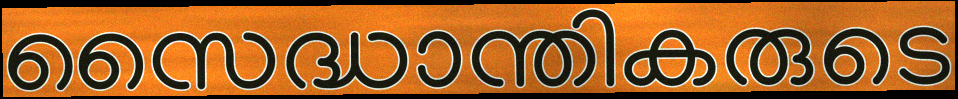
സൈദ്ധാന്തികരുടെ